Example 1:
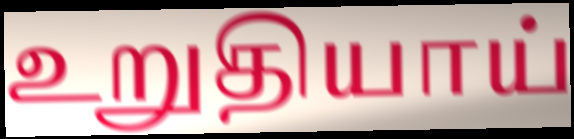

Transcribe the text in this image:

உறுதியாய்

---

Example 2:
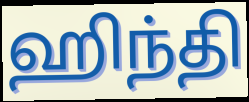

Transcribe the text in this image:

ஹிந்தி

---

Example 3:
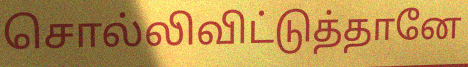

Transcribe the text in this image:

சொல்லிவிட்டுத்தானே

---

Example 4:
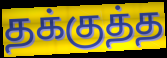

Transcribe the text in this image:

தக்குத்த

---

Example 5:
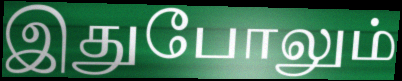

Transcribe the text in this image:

இதுபோலும்